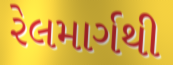
રેલમાર્ગથી